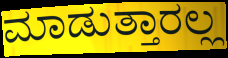
ಮಾಡುತ್ತಾರಲ್ಲ